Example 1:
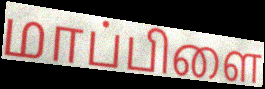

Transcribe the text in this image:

மாப்பிளை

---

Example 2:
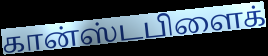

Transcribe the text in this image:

கான்ஸ்டபிளைக்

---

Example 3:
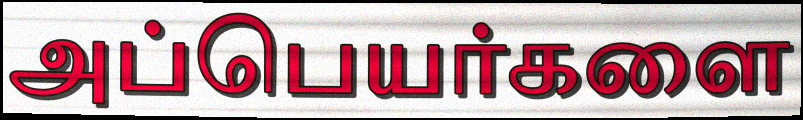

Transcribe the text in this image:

அப்பெயர்களை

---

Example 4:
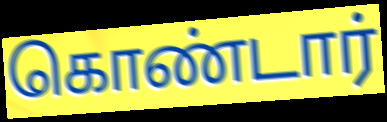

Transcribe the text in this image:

கொண்டார்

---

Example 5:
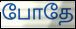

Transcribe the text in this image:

போதே